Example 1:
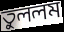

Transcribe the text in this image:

তুললম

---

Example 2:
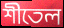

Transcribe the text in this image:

শীতেল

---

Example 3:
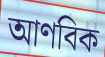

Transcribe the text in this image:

আণবিক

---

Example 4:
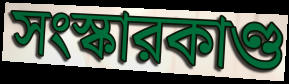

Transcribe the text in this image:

সংস্কারকাণ্ড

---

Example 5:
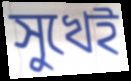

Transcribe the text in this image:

সুখেই